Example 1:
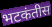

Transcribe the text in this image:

भटकंतीस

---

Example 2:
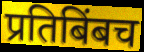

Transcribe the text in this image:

प्रतिबिंबच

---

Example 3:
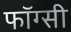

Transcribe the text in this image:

फॉग्सी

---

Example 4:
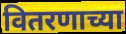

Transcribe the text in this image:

वितरणाच्या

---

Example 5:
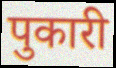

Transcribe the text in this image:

पुकारी